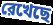
রেখেছে